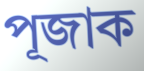
পূজাক